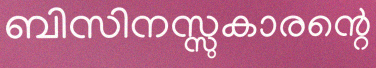
ബിസിനസ്സുകാരന്റെ